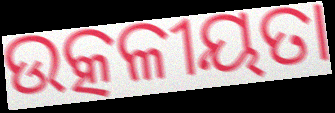
ଉତ୍କଳୀୟତା